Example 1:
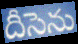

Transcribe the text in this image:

దీసెను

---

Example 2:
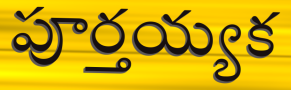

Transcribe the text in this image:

పూర్తయ్యక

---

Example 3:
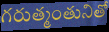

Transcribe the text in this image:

గరుత్మంతునితో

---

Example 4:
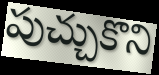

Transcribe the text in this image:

పుచ్చుకొని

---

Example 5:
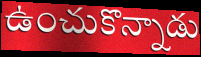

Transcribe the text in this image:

ఉంచుకొన్నాడు